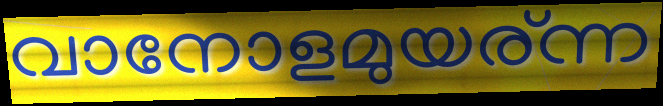
വാനോളമുയര്ന്ന